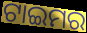
ଟାଇମର